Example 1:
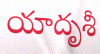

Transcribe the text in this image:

యాదృశీ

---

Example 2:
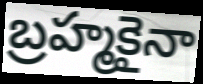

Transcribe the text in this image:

బ్రహ్మకైనా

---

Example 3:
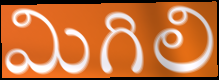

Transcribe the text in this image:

మిగిలి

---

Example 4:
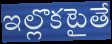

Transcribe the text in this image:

ఇల్లొకటైతే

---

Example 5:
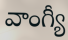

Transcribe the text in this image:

వాంగ్యీ